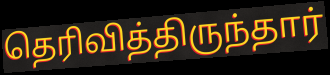
தெரிவித்திருந்தார்